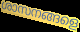
ശാസനങ്ങളെ